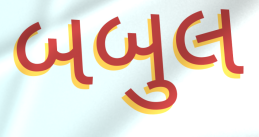
બબુલ